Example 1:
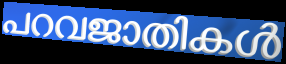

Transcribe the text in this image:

പറവജാതികൾ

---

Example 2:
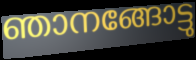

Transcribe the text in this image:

ഞാനങ്ങോട്ടു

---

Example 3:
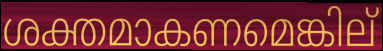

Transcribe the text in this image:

ശക്തമാകണമെങ്കില്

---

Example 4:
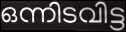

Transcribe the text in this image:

ഒന്നിടവിട്ട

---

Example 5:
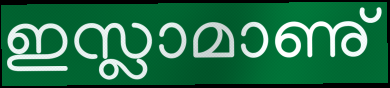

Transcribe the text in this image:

ഇസ്ലാമാണു്